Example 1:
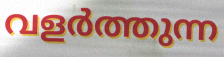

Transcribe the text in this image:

വളർത്തുന്ന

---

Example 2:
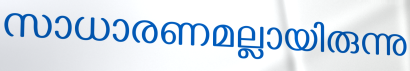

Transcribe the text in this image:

സാധാരണമല്ലായിരുന്നു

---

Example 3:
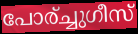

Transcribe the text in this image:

പോര്ച്ചുഗീസ്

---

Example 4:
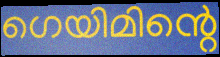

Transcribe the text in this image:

ഗെയിമിന്റെ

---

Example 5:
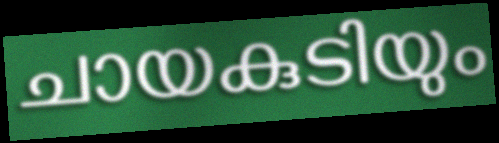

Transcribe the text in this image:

ചായകുടിയും